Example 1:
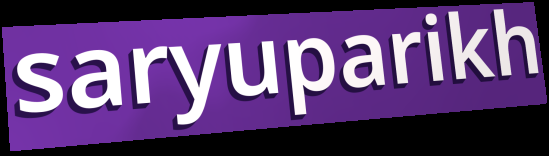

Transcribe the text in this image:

saryuparikh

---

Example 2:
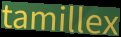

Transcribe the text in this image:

tamillex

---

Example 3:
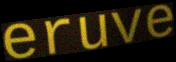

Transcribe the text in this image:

eruve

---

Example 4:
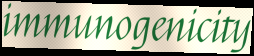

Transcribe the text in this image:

immunogenicity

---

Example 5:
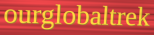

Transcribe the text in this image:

ourglobaltrek